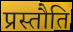
प्रस्तौति